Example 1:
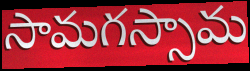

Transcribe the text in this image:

సామగస్సామ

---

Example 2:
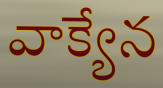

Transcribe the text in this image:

వాక్యేన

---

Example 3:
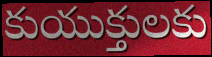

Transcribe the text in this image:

కుయుక్తులకు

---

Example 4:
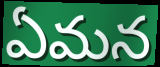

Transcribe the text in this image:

ఏమన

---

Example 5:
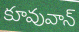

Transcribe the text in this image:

కూవువాన్